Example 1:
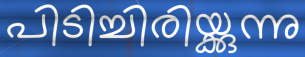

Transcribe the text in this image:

പിടിച്ചിരിയ്ക്കുന്നു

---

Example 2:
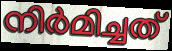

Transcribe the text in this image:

നിർമിച്ചത്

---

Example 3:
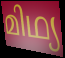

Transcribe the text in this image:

മിഥ്യ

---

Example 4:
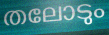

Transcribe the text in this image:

തലോടും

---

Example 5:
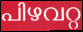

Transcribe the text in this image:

പിഴവറ്റ